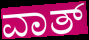
ವಾತ್